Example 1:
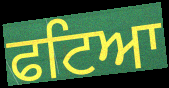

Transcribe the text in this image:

ਫਟਿਆ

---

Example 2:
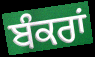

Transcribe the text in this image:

ਬੰਕਰਾਂ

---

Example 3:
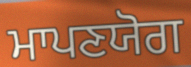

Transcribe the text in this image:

ਮਾਪਣਯੋਗ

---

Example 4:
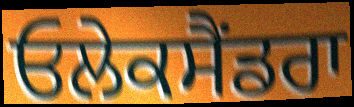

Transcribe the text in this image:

ਓਲੇਕਸੈਂਡਰਾ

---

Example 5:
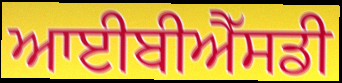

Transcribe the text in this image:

ਆਈਬੀਐੱਸਡੀ